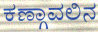
ಕಣ್ಗಾವಲಿನ